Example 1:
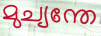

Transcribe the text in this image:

മുച്യന്തേ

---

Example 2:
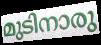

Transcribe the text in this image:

മുടിനാരു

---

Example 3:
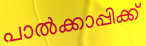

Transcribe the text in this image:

പാൽക്കാപ്പിക്ക്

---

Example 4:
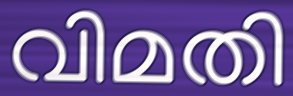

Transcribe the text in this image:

വിമതി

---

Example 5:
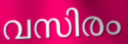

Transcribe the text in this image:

വസിരം